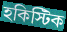
হকিস্টিক